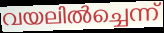
വയലിൽച്ചെന്ന്